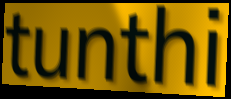
tunthi